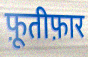
फ़ूतीफ़ार